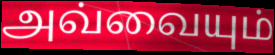
அவ்வையும்